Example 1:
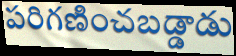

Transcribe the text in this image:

పరిగణించబడ్డాడు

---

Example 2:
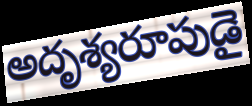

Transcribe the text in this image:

అదృశ్యరూపుడై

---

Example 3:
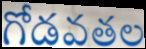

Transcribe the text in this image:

గోడవతల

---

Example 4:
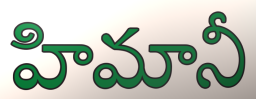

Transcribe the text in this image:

హిమానీ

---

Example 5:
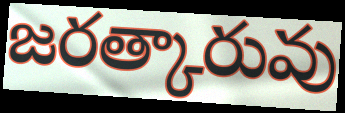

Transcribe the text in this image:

జరత్కారువు